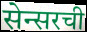
सेन्सरची